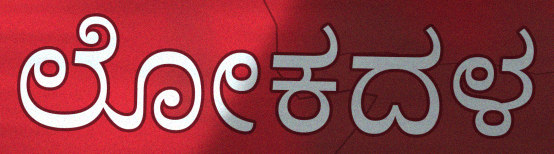
ಲೋಕದಳ